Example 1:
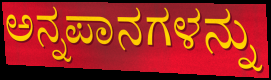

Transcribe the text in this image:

ಅನ್ನಪಾನಗಳನ್ನು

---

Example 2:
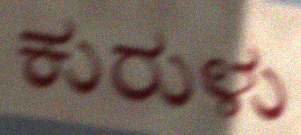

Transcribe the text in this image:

ಕುರುಳು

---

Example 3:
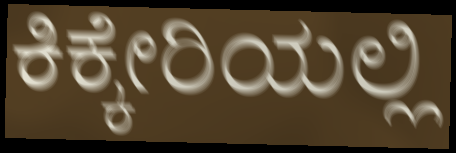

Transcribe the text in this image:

ಕಿಕ್ಕೇರಿಯಲ್ಲಿ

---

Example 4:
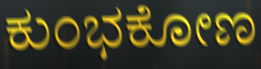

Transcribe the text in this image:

ಕುಂಭಕೋಣ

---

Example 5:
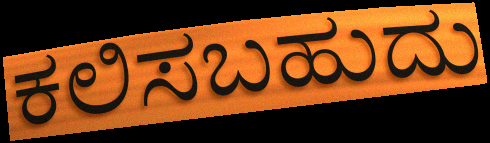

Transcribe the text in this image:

ಕಲಿಸಬಹುದು